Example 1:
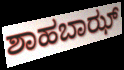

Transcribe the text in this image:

ಶಾಹಬಾಝ್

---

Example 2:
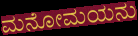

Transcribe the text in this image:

ಮನೋಮಯನು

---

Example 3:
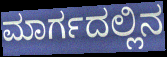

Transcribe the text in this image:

ಮಾರ್ಗದಲ್ಲಿನ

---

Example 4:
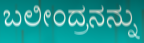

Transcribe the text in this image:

ಬಲೀಂದ್ರನನ್ನು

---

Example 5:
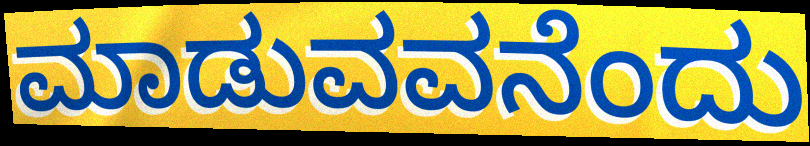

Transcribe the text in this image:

ಮಾಡುವವನೆಂದು